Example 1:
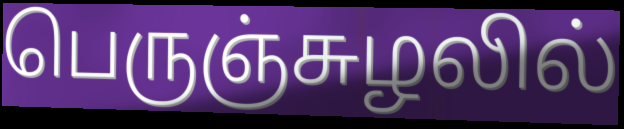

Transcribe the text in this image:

பெருஞ்சுழலில்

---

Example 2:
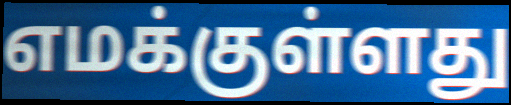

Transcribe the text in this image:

எமக்குள்ளது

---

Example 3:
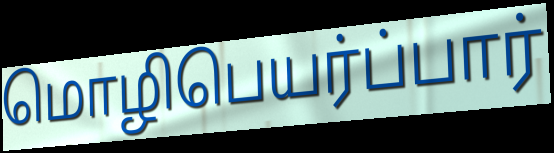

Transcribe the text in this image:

மொழிபெயர்ப்பார்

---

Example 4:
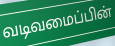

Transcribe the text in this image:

வடிவமைப்பின்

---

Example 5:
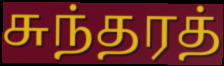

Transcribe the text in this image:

சுந்தரத்